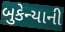
બુકેન્યાની